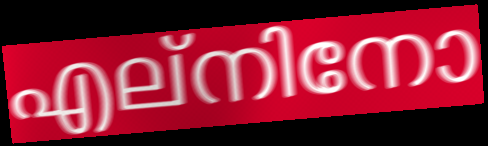
എല്നിനോ